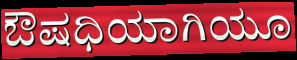
ಔಷಧಿಯಾಗಿಯೂ